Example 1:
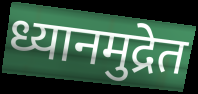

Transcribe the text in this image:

ध्यानमुद्रेत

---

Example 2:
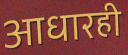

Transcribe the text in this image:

आधारही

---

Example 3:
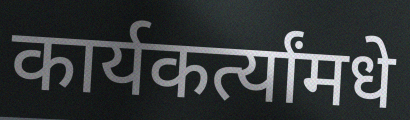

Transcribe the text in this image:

कार्यकर्त्यांमधे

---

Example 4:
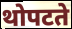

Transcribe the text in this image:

थोपटते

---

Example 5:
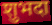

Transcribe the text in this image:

शुभदा